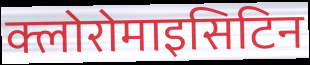
क्लोरोमाइसिटिन